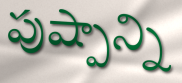
పుష్పాన్ని